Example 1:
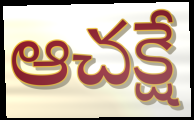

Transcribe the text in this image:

ఆచక్షే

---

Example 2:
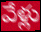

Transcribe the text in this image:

వేళ్లు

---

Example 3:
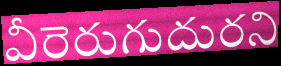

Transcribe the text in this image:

వీరెరుగుదురని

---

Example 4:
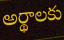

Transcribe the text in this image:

అర్థాలకు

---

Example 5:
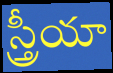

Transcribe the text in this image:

స్త్రీయా